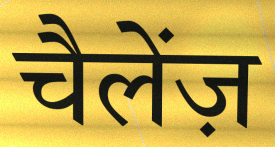
चैलेंज़